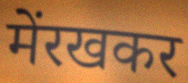
मेंरखकर